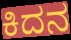
ಕಿದನ